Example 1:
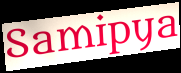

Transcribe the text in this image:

Samipya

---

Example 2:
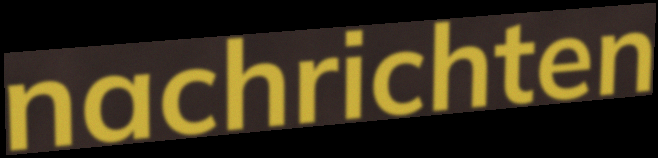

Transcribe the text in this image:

nachrichten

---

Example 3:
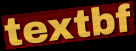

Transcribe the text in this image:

textbf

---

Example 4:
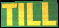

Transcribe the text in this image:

TILL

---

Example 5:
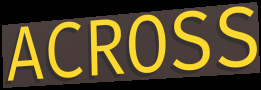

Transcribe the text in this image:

ACROSS